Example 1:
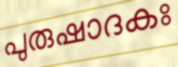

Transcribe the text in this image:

പുരുഷാദകഃ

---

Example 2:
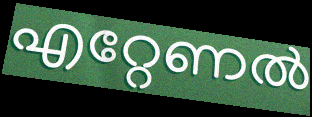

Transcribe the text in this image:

എറ്റേണൽ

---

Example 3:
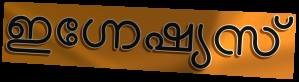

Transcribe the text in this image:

ഇഗ്നേഷ്യസ്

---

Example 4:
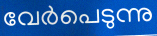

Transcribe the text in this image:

വേർപെടുന്നു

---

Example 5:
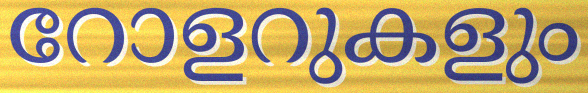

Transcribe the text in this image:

റോളറുകളും